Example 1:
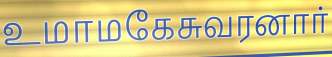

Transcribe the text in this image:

உமாமகேசுவரனார்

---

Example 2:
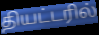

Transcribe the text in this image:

தியட்டரில்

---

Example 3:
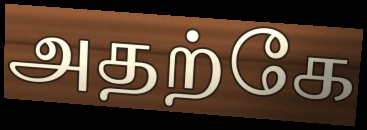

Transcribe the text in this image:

அதற்கே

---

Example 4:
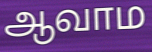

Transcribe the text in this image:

ஆவாம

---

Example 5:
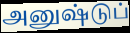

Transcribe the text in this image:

அனுஷ்டுப்